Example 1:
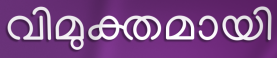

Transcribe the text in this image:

വിമുക്തമായി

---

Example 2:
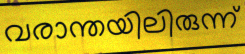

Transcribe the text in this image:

വരാന്തയിലിരുന്ന്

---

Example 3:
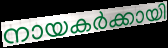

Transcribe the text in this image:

നായകർക്കായി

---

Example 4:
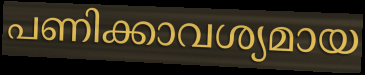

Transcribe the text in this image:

പണിക്കാവശ്യമായ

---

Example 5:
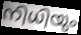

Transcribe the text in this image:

നിധിയും